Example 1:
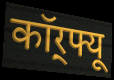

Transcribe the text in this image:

कॉर्फ्यू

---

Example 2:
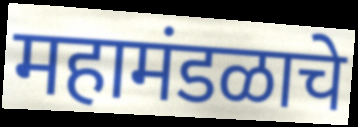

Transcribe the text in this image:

महामंडळाचे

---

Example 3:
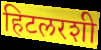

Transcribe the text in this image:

हिटलरशी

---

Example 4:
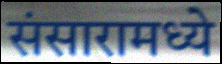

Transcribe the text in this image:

संसारामध्ये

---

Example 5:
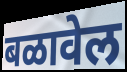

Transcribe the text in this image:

बळावेल